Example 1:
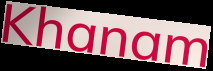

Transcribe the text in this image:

Khanam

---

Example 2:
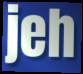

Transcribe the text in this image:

jeh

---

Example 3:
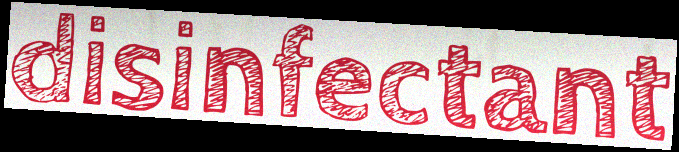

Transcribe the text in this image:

disinfectant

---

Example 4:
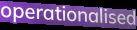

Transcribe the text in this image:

operationalised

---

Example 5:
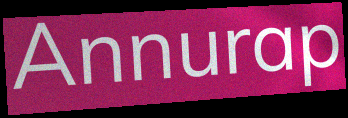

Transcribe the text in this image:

Annurap